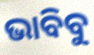
ଭାବିବୁ